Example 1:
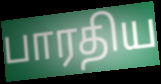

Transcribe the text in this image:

பாரதிய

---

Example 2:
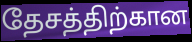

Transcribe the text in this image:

தேசத்திற்கான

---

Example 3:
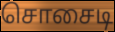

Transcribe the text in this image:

சொசைடி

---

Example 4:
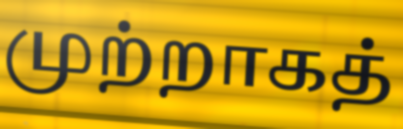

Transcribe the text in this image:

முற்றாகத்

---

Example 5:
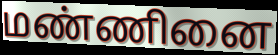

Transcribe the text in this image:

மண்ணினை